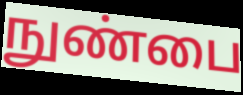
நுண்பை